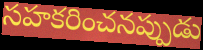
సహకరించనప్పుడు